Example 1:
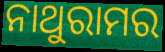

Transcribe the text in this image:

ନାଥୁରାମର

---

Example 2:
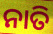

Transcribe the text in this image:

ନାତି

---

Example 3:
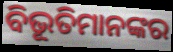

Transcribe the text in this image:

ବିଭୂତିମାନଙ୍କର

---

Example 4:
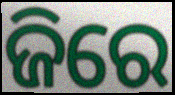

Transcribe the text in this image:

ଜିରେ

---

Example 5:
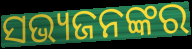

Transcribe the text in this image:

ସଭ୍ୟଜନଙ୍କର